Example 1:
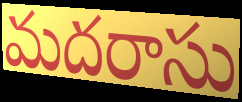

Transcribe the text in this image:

మదరాసు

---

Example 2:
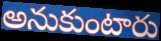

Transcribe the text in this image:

అనుకుంటారు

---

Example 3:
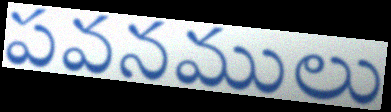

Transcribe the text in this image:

పవనములు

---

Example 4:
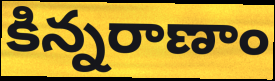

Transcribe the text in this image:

కిన్నరాణాం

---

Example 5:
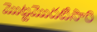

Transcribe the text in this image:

మొట్టమొదటిసారి